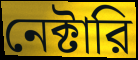
নেক্টারি